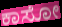
ಕಾಸೋ